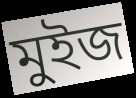
মুইজ